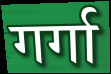
गर्गा